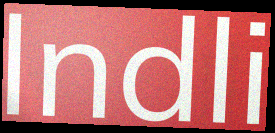
Indli